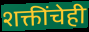
शक्तींचेही